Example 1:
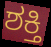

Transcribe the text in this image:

ಶಕ್ತಿ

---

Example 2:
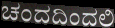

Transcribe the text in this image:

ಚಂದದಿಂದಲಿ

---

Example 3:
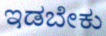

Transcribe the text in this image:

ಇಡಬೇಕು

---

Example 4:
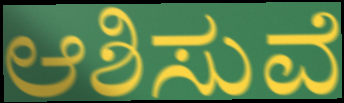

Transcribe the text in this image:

ಆಶಿಸುವೆ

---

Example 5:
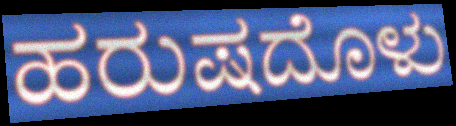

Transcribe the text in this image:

ಹರುಷದೊಳು